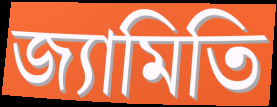
জ্যামিতি